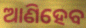
ଆଣିହେବ